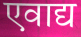
एवाद्य